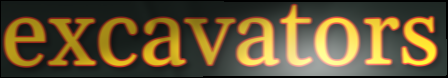
excavators